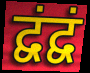
द्वंद्वं